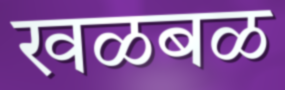
खळबळ